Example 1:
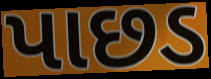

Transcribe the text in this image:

પાછડ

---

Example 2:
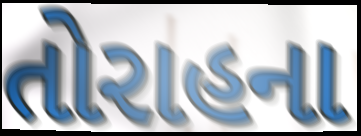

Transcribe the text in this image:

તોરાહના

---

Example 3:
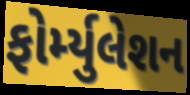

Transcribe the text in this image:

ફોર્મ્યુલેશન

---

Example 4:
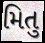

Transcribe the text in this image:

મિતુ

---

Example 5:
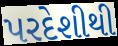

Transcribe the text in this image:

પરદેશીથી